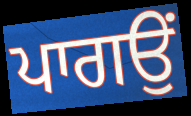
ਪਾਗਉਂ